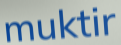
muktir